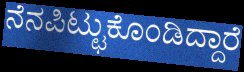
ನೆನಪಿಟ್ಟುಕೊಂಡಿದ್ದಾರೆ